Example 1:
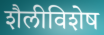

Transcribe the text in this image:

शैलीविशेष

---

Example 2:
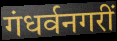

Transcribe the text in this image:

गंधर्वनगरीं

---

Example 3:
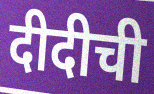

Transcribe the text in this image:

दीदीची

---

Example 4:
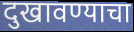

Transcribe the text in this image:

दुखावण्याचा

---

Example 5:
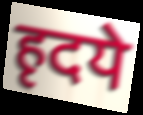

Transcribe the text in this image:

हृदये